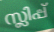
സ്ലിപ്പ്